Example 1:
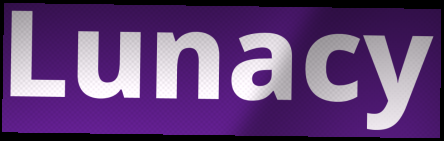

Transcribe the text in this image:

Lunacy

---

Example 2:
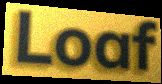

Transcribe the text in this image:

Loaf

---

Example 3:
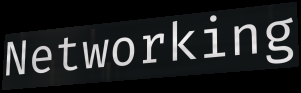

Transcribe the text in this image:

Networking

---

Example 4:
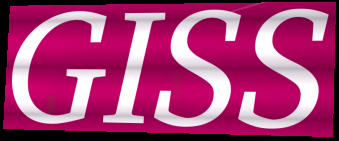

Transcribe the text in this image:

GISS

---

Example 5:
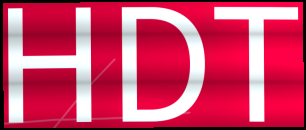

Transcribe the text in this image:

HDT